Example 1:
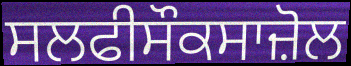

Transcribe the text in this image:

ਸਲਫੀਸੌਕਸਾਜ਼ੋਲ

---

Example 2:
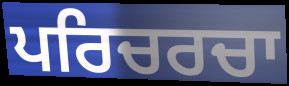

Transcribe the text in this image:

ਪਰਿਚਰਚਾ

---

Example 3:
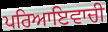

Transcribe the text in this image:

ਪਰਿਆਇਵਾਚੀ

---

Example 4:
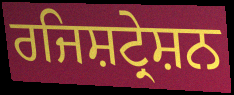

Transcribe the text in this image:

ਰਜਿਸ਼ਟ੍ਰੇਸ਼ਨ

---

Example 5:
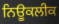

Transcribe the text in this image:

ਨਿਊਕਲੀਕ